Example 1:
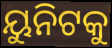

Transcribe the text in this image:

ୟୁନିଟକୁ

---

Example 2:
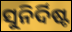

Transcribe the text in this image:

ସୁନିର୍ଦିଷ୍ଟ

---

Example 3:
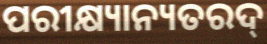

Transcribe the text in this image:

ପରୀକ୍ଷ୍ୟାନ୍ୟତରଦ୍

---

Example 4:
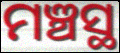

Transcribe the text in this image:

ମଞ୍ଚସ୍ଥ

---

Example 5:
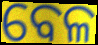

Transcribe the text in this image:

ବେଳ